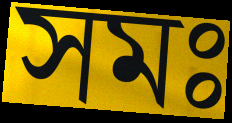
সমঃ